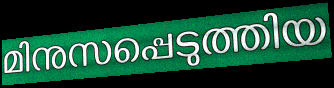
മിനുസപ്പെടുത്തിയ